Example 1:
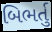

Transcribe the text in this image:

બિભર્તુ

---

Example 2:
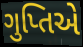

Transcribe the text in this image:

ગુપ્તિએ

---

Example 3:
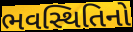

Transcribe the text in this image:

ભવસ્થિતિનો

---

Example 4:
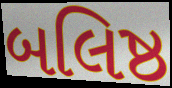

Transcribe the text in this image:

બલિષ્ઠ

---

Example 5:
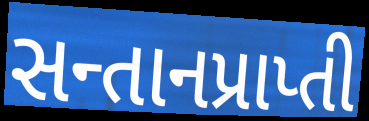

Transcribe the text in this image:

સન્તાનપ્રાપ્તી